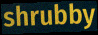
shrubby